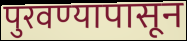
पुरवण्यापासून